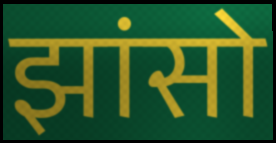
झांसो